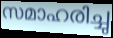
സമാഹരിച്ചു